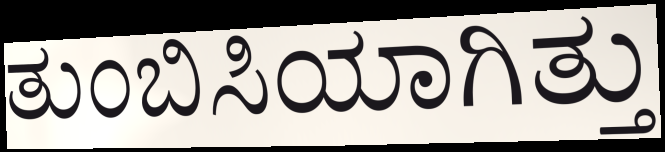
ತುಂಬಿಸಿಯಾಗಿತ್ತು